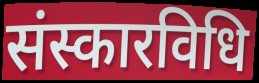
संस्कारविधि